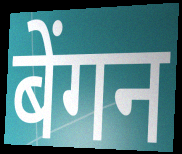
बेंगन